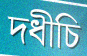
দধীচি